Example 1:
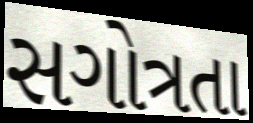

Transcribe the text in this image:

સગોત્રતા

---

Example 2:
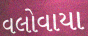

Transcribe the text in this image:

વલોવાયા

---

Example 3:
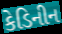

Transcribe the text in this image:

કેડિનીન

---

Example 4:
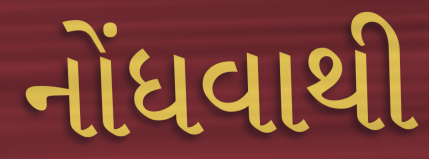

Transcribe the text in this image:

નોંધવાથી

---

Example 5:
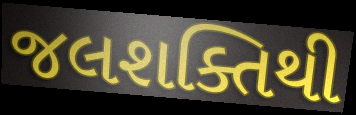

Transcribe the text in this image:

જલશક્તિથી